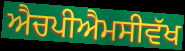
ਐਚਪੀਐਮਸੀਵੱਖ